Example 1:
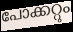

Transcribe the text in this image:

പോക്കറ്റും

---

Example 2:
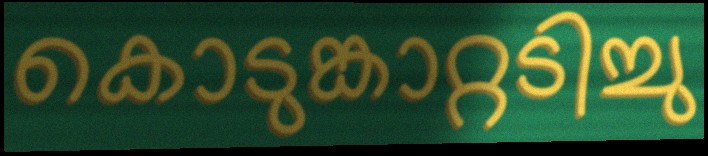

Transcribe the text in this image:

കൊടുങ്കാറ്റടിച്ചു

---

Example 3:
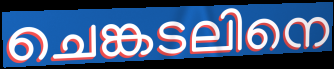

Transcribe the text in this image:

ചെങ്കടലിനെ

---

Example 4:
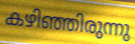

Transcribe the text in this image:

കഴിഞ്ഞിരുന്നു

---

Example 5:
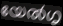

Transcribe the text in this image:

യേൽഗൃ